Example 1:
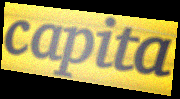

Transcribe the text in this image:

capita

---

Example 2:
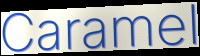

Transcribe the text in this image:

Caramel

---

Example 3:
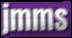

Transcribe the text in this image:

jmms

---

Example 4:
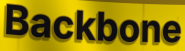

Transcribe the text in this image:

Backbone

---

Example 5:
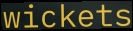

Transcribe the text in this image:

wickets